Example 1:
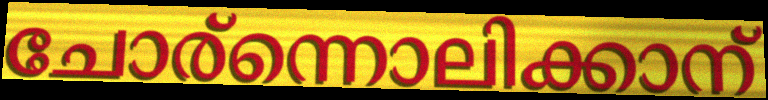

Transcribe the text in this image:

ചോര്ന്നൊലിക്കാന്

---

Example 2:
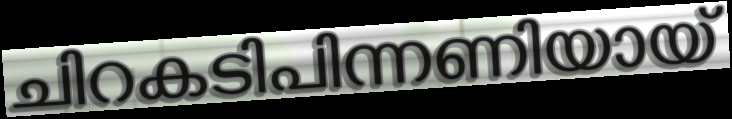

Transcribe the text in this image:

ചിറകടിപിന്നണിയായ്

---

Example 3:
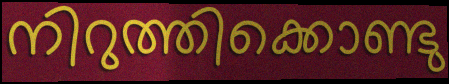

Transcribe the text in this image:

നിറുത്തിക്കൊണ്ടു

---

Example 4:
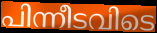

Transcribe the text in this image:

പിന്നീടവിടെ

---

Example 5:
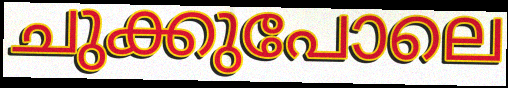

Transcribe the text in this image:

ചുക്കുപോലെ